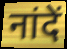
नांदें